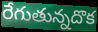
రేగుతున్నదొక